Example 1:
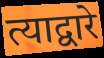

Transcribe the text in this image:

त्याद्वारे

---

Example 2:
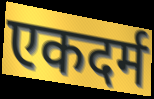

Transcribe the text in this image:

एकदर्म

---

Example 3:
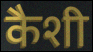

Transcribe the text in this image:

कैशी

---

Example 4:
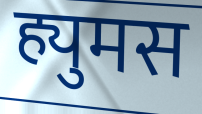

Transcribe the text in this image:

ह्युमस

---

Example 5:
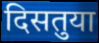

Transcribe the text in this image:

दिसतुया